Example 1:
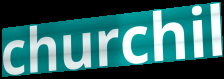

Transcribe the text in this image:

churchil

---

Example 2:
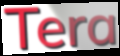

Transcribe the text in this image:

Tera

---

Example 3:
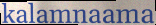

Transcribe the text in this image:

kalamnaama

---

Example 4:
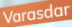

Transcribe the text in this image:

Varasdar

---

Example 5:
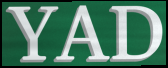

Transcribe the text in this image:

YAD